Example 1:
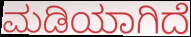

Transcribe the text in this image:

ಮಡಿಯಾಗಿದೆ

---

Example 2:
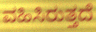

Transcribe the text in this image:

ವಹಿಸಿರುತ್ತದೆ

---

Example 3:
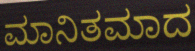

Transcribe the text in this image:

ಮಾನಿತಮಾದ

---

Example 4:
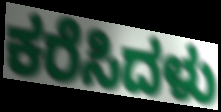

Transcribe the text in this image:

ಕರೆಸಿದಳು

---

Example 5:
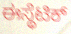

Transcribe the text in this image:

ಈಸ್ಥೆಟಿಕ್